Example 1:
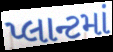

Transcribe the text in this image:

પ્લાન્ટમાં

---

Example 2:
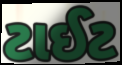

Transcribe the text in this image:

ટાઈટ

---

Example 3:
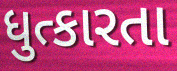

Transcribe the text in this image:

ધુત્કારતા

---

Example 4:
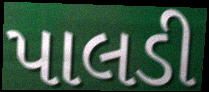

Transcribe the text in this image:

પાલડી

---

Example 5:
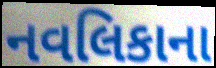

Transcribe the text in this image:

નવલિકાના